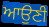
ਆਉਣੀ